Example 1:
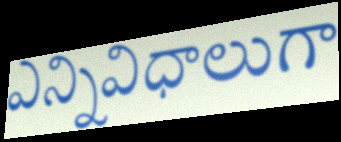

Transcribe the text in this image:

ఎన్నివిధాలుగా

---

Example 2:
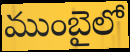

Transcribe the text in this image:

ముంబైలో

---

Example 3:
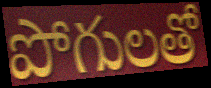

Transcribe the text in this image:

పోగులతో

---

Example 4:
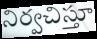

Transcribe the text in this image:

నిర్వచిస్తూ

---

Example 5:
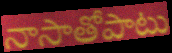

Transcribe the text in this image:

నాసాతోపాటు